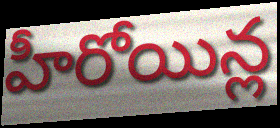
హీరోయిన్ల